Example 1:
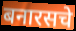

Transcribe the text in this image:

बनारसचे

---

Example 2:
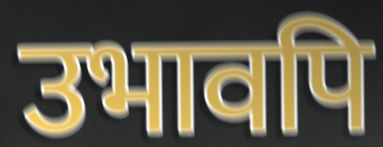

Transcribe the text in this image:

उभावपि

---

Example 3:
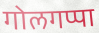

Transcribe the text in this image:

गोलगप्पा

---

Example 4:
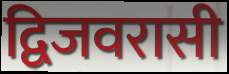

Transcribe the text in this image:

द्विजवरासी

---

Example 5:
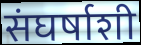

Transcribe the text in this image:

संघर्षाशी